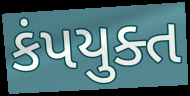
કંપયુક્ત